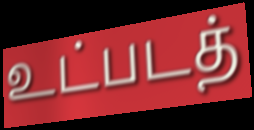
உட்படத்